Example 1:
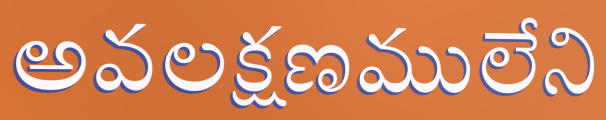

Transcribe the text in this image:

అవలక్షణములేని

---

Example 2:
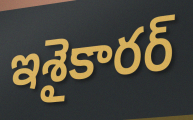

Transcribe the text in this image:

ఇశైకారర్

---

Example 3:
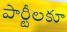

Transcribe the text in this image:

పార్టీలకూ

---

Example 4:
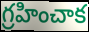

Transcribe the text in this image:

గ్రహించాక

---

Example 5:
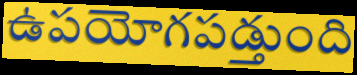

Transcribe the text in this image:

ఉపయోగపడ్తుంది